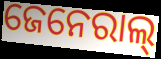
ଜେନେରାଲ୍